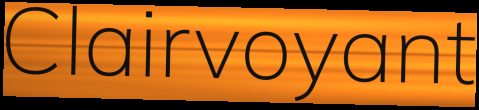
Clairvoyant